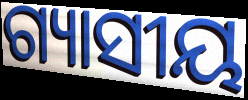
ଗ୍ୟାସୀୟ